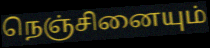
நெஞ்சினையும்